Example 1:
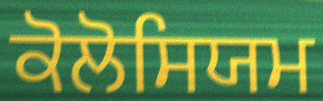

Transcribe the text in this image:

ਕੋਲੋਸਿਯਮ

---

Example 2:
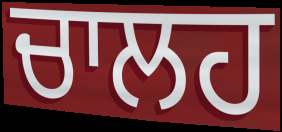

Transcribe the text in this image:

ਚਾਲਹ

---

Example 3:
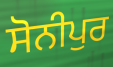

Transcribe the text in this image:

ਸੋਨੀਪੁਰ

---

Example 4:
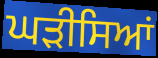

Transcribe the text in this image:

ਘੜੀਸਿਆਂ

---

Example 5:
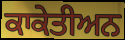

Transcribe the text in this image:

ਕਾਕੇਤੀਅਨ